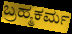
ಬ್ರಹ್ಮಕರ್ಮ